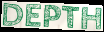
DEPTH